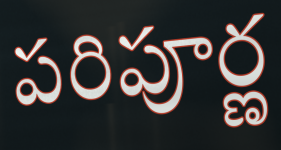
పరిపూర్ణ